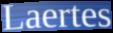
Laertes